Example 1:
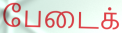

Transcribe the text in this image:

பேடைக்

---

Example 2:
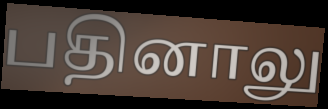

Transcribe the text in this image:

பதினாலு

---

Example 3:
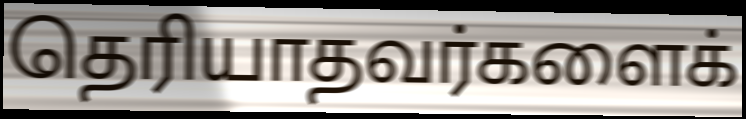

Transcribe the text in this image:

தெரியாதவர்களைக்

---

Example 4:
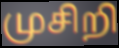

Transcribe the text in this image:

முசிறி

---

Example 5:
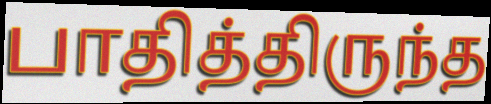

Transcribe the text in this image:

பாதித்திருந்த